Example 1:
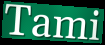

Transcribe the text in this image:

Tami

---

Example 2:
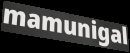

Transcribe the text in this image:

mamunigal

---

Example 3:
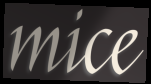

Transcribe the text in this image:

mice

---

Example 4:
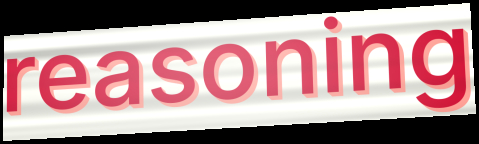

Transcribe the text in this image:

reasoning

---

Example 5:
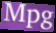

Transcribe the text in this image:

Mpg